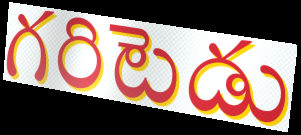
గరిటెడు